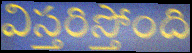
విస్తరిస్తోంది